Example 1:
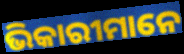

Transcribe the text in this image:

ଭିକାରୀମାନେ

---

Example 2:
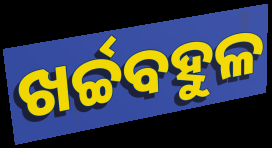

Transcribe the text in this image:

ଖର୍ଚ୍ଚବହୁଳ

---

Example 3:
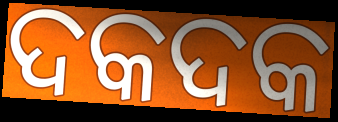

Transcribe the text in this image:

ଦକଦକ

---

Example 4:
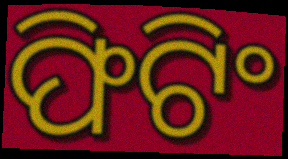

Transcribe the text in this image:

ଫିଟିଂ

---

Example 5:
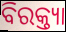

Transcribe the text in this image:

ବିରକ୍ତ୍ୟା